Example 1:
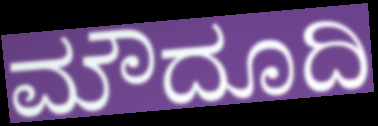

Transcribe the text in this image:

ಮೌದೂದಿ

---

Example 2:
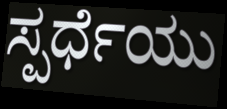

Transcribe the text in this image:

ಸ್ಪರ್ಧೆಯು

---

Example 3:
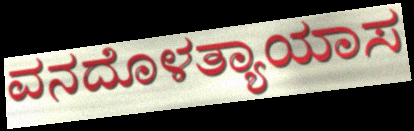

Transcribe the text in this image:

ವನದೊಳತ್ಯಾಯಾಸ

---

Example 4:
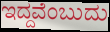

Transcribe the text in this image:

ಇದ್ದವೆಂಬುದು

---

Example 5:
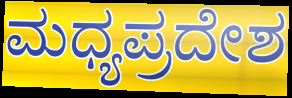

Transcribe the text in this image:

ಮಧ್ಯಪ್ರದೇಶ